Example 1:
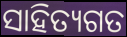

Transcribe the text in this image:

ସାହିତ୍ୟଗତ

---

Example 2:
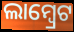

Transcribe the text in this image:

ଲାମ୍ୱ୍ରେଟ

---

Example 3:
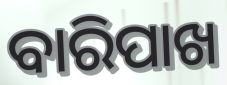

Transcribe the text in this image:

ବାରିପାଖ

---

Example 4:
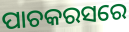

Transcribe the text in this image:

ପାଚକରସରେ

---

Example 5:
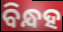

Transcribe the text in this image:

ବିନ୍ଧହ